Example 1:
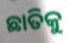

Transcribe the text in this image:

ଛାତିକୁ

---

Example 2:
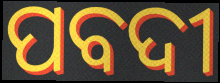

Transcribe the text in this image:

ପବଦୀ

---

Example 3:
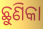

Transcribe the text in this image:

ଛୁଣିକା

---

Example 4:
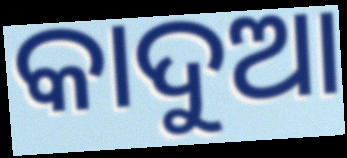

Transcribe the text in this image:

କାଦୁଆ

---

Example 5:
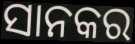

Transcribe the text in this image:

ସାନକର